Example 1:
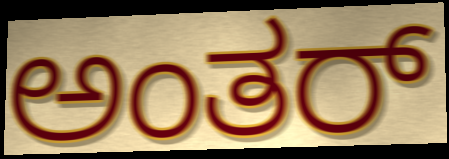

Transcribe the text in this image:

ಅಂತರ್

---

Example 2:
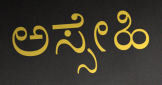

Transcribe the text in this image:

ಅಸ್ಸೇಹಿ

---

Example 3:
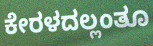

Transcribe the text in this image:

ಕೇರಳದಲ್ಲಂತೂ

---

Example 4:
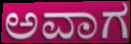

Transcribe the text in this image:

ಅವಾಗ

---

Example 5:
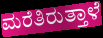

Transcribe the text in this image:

ಮರೆತಿರುತ್ತಾಳೆ